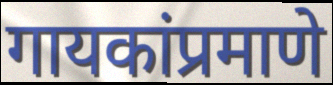
गायकांप्रमाणे